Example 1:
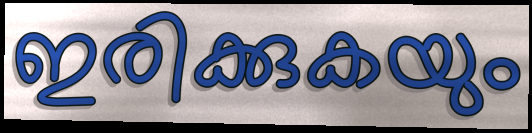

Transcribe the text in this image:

ഇരിക്കുകയും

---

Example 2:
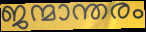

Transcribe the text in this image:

ജന്മാന്തരം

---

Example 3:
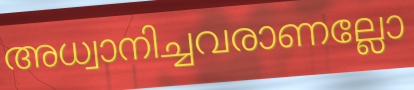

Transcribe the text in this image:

അധ്വാനിച്ചവരാണല്ലോ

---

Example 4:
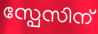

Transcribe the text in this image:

സ്പേസിന്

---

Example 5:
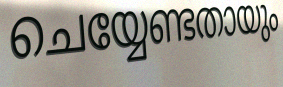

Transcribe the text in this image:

ചെയ്യേണ്ടതായും